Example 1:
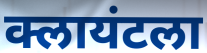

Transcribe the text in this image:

क्लायंटला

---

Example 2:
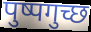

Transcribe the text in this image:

पुष्पगुच्छ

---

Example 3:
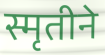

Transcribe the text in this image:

स्मृतीने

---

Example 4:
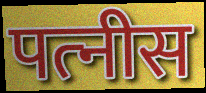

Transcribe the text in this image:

पत्‍नीस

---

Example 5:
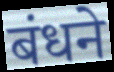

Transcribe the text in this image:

बंधने